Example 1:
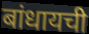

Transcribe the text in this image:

बांधायची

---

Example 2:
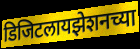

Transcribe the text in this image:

डिजिटलायझेशनच्या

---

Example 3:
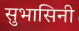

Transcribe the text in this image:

सुभासिनी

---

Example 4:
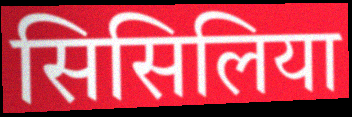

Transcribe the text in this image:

सिसिलिया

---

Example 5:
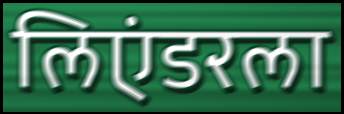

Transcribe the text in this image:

लिएंडरला